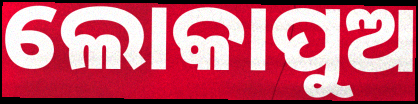
ଲୋକାପୁଅ